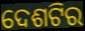
ଦେଶଟିର